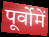
पूर्वोमें